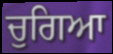
ਚੁਗਿਆ